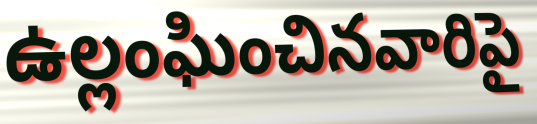
ఉల్లంఘించినవారిపై